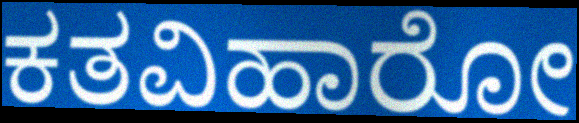
ಕತವಿಹಾರೋ